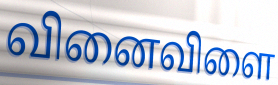
வினைவிளை